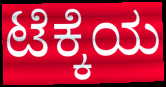
ಟೆಕ್ಕೆಯ